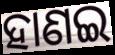
ହାଣଇ